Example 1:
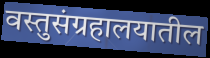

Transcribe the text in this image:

वस्तुसंग्रहालयातील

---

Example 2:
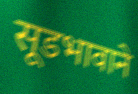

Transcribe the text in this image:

सूडभावाने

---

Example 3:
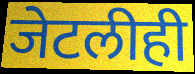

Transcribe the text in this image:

जेटलीही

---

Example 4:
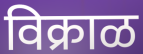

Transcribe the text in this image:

विक्राळ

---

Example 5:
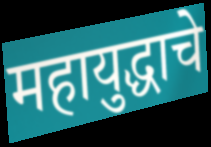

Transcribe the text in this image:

महायुद्धाचे